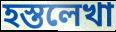
হস্তলেখা